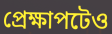
প্রেক্ষাপটেও